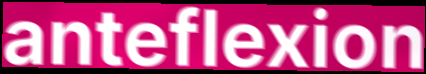
anteflexion